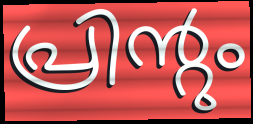
പ്രിന്റും